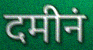
दमीनं